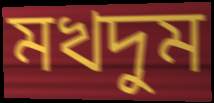
মখদুম